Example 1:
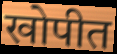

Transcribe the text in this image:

खोपीत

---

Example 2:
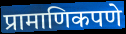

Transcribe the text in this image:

प्रामाणिकपणे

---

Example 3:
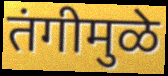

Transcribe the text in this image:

तंगीमुळे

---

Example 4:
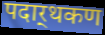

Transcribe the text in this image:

पदार्थकण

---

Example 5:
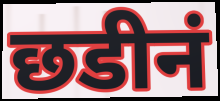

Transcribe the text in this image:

छडीनं